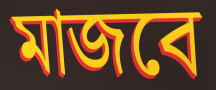
মাজবে